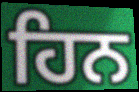
ਹਿਨ